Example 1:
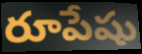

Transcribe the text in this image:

రూపేషు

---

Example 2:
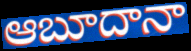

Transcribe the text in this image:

ఆబూదానా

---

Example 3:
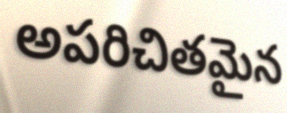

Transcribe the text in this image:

అపరిచితమైన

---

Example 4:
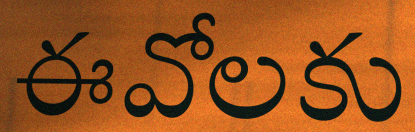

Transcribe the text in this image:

ఈవోలకు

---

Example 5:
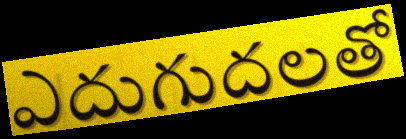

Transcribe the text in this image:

ఎదుగుదలతో